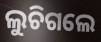
ଲୁଚିଗଲେ